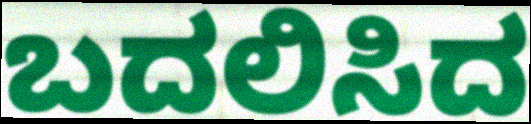
ಬದಲಿಸಿದ